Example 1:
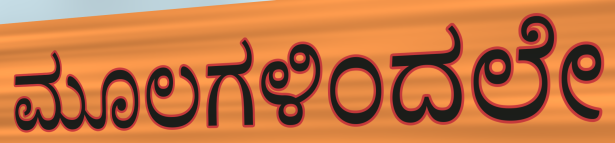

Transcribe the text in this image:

ಮೂಲಗಳಿಂದಲೇ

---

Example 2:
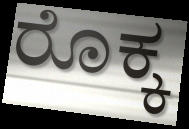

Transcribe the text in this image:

ರೊಕ್ಕ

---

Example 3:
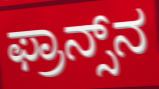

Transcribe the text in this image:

ಫ್ರಾನ್ಸ್‌ನ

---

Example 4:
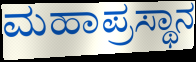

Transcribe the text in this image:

ಮಹಾಪ್ರಸ್ಥಾನ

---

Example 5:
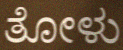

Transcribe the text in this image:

ತೋಳು